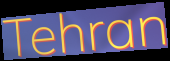
Tehran